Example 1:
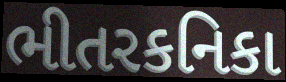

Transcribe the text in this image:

ભીતરકનિકા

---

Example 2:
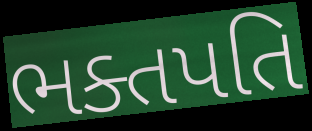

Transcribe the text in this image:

ભક્તપતિ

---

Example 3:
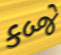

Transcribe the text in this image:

કબ્જે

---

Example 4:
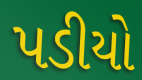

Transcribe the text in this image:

પડીયો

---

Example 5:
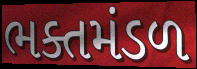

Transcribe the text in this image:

ભક્તમંડળ